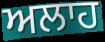
ਅਲਾਹ